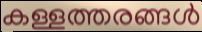
കള്ളത്തരങ്ങൾ